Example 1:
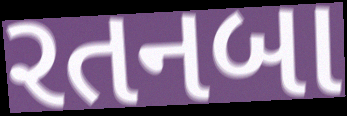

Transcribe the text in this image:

રતનબા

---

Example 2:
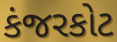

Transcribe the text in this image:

કંજરકોટ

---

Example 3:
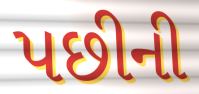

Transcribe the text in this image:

પછીની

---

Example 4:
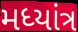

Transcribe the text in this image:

મધ્યાંત્ર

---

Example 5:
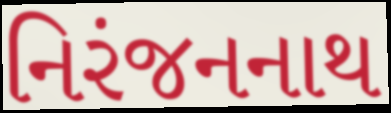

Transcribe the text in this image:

નિરંજનનાથ